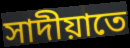
সাদীয়াতে